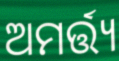
ଅମର୍ତ୍ତ୍ୟ